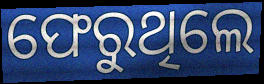
ଫେରୁଥିଲେ